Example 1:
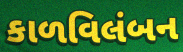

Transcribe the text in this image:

કાળવિલંબન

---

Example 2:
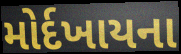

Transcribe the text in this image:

મોર્દખાયના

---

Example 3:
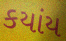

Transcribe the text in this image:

કયાંય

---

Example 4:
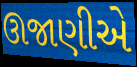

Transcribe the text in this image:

ઊજાણીએ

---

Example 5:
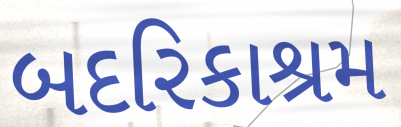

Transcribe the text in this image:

બદરિકાશ્રમ